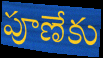
పూణేకు